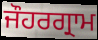
ਜੌਹਰਗ੍ਰਾਮ